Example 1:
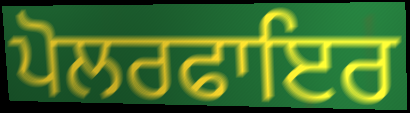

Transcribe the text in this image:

ਪੋਲਰਫਾਇਰ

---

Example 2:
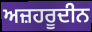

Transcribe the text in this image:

ਅਜ਼ਹਰੂਦੀਨ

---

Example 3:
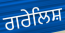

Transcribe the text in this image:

ਗਰੇਲਿਸ਼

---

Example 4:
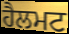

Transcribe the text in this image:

ਹੈਲਮਟ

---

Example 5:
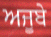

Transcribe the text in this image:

ਅਜੂਬੇ